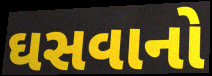
ઘસવાનો